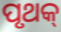
ପୃଥକ୍